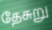
தேசுறு